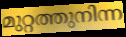
മുറ്റത്തുനിന്ന